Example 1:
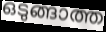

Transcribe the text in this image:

ഒടുങ്ങാത്ത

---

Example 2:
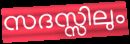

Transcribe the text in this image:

സദസ്സിലും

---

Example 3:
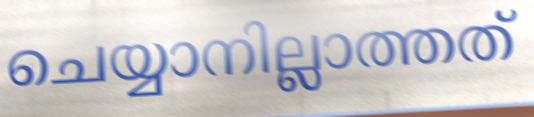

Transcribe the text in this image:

ചെയ്യാനില്ലാത്തത്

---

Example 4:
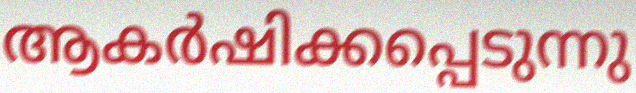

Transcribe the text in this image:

ആകർഷിക്കപ്പെടുന്നു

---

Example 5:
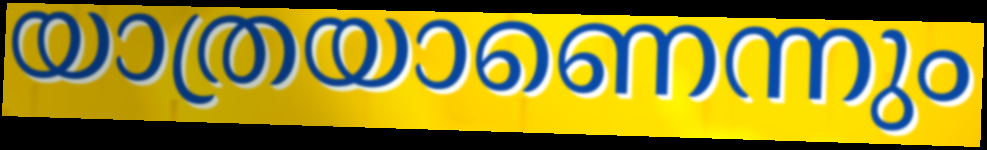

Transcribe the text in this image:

യാത്രയാണെന്നും